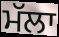
ਮੱਲਾ